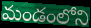
మండంలోని